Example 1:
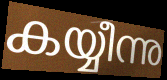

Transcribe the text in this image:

കയ്യീന്നു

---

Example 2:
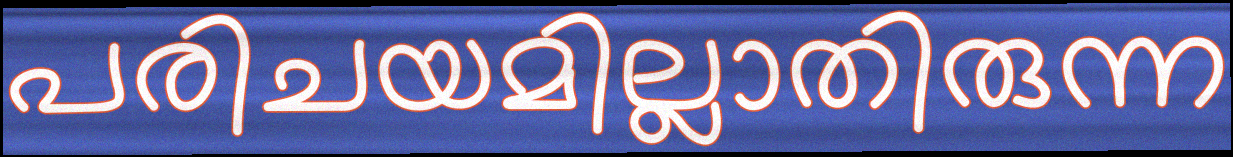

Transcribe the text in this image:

പരിചയമില്ലാതിരുന്ന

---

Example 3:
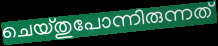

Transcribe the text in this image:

ചെയ്തുപോന്നിരുന്നത്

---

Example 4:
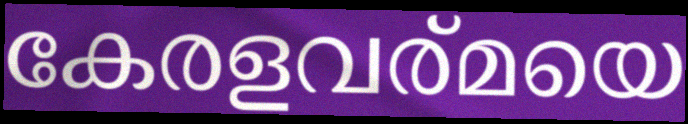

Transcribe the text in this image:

കേരളവര്മയെ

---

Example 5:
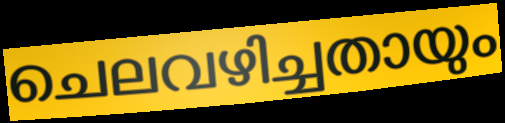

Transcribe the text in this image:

ചെലവഴിച്ചതായും